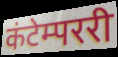
कंटेम्पररी